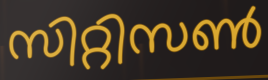
സിറ്റിസൺ